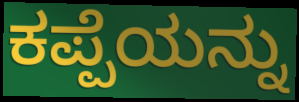
ಕಪ್ಪೆಯನ್ನು